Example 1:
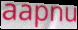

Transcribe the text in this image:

aapnu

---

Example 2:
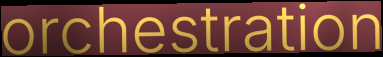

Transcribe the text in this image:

orchestration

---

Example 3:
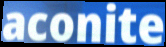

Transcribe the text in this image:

aconite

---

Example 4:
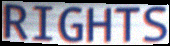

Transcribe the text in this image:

RIGHTS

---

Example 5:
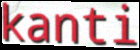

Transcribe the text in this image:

kanti